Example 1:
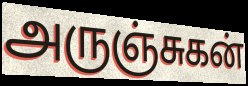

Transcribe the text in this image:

அருஞ்சுகன்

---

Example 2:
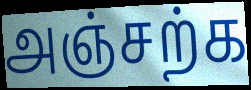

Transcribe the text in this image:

அஞ்சற்க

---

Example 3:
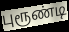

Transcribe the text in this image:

புரூண்டி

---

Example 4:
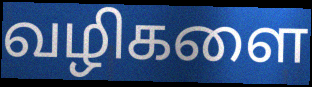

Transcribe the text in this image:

வழிகளை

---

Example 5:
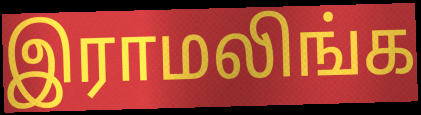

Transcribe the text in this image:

இராமலிங்க